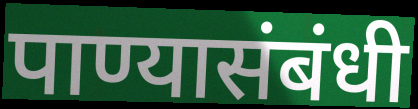
पाण्यासंबंधी